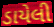
ડાયેલી